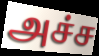
அச்ச